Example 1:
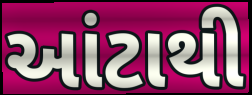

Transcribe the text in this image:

આંટાથી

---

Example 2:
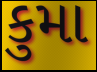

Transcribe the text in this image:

કુમા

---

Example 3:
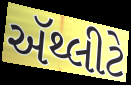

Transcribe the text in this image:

ઍથ્લીટે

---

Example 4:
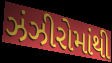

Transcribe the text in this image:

ઝંઝીરોમાંથી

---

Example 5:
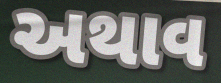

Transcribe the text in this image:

અથાવ